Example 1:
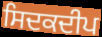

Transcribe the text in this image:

ਸਿਦਕਦੀਪ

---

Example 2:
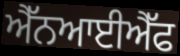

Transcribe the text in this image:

ਐੱਨਆਈਐੱਫ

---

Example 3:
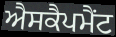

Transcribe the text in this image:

ਐਸਕੈਪਮੈਂਟ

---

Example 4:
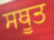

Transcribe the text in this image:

ਸਥੂਤ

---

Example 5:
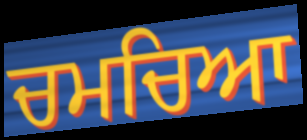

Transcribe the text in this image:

ਚਮਚਿਆ